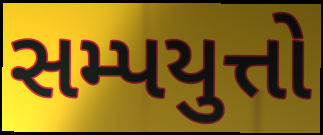
સમ્પયુત્તો